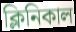
ক্লিনিকাল